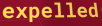
expelled